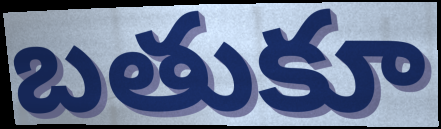
బతుకూ